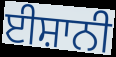
ਈਸ਼ਾਨੀ